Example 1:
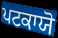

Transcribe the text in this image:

ਪਟਕਾਯੋ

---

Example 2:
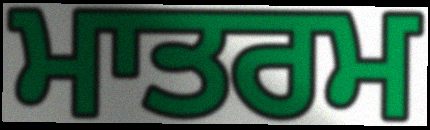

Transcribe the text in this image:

ਮਾਤਰਮ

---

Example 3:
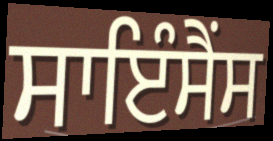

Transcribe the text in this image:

ਸਾਇੰਸੈਂਸ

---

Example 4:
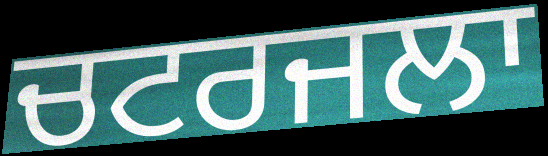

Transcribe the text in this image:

ਚਟਰਜਲਾ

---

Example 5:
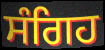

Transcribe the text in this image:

ਸੰਗਿਹ